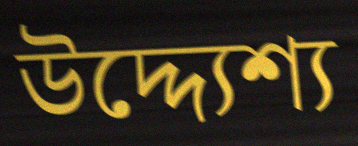
উদ্দ্যেশ্য